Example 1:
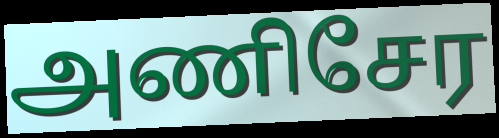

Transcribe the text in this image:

அணிசேர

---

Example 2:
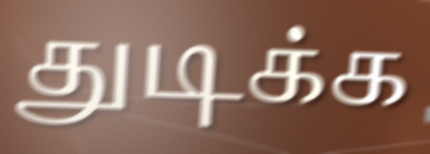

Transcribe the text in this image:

துடிக்க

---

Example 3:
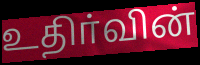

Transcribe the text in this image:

உதிர்வின்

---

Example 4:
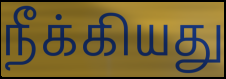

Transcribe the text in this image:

நீக்கியது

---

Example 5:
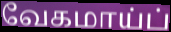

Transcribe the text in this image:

வேகமாய்ப்